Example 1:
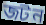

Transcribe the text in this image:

জটন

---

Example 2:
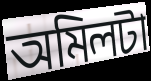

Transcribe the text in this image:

অমিলটা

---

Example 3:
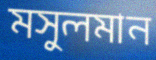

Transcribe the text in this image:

মসুলমান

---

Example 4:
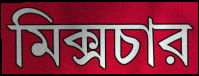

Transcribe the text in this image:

মিক্সচার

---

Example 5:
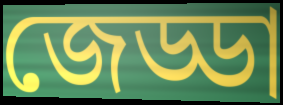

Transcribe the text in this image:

জেড্ডা